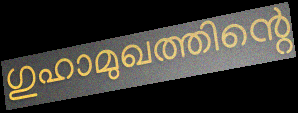
ഗുഹാമുഖത്തിന്റെ